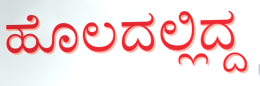
ಹೊಲದಲ್ಲಿದ್ದ